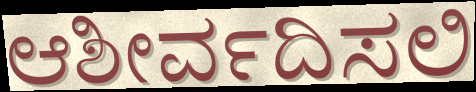
ಆಶೀರ್ವದಿಸಲಿ